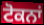
ਟੋਕਨਾਂ